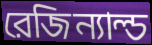
রেজিন্যাল্ড